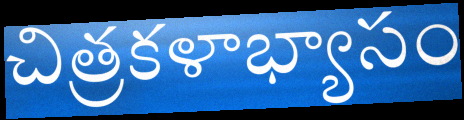
చిత్రకళాభ్యాసం